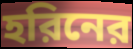
হরিনের